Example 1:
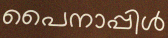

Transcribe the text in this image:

പൈനാപ്പിൾ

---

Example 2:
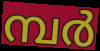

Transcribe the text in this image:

മ്പർ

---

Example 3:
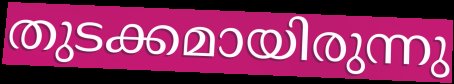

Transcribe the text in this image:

തുടക്കമായിരുന്നു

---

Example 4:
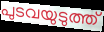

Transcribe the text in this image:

പുടവയുടുത്ത്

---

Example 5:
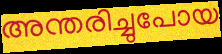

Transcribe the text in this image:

അന്തരിച്ചുപോയ